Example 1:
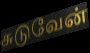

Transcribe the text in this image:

சுடுவேன்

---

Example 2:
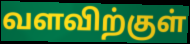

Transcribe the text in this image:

வளவிற்குள்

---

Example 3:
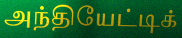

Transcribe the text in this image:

அந்தியேட்டிக்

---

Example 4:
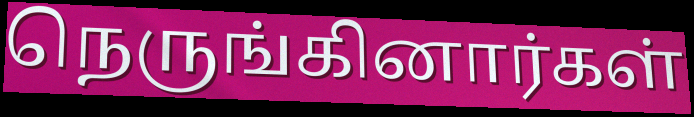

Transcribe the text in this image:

நெருங்கினார்கள்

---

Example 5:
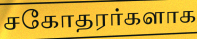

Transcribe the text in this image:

சகோதரர்களாக